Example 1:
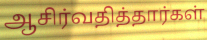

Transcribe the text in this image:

ஆசிர்வதித்தார்கள்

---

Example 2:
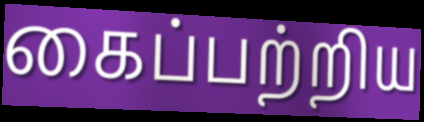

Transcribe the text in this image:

கைப்பற்றிய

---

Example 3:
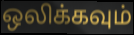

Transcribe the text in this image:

ஒலிக்கவும்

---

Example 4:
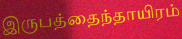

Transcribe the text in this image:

இருபத்தைந்தாயிரம்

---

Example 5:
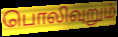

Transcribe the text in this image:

பொலிவுறும்